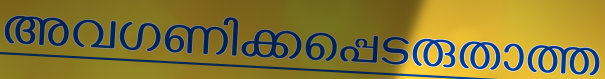
അവഗണിക്കപ്പെടരുതാത്ത